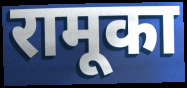
रामूका